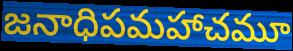
జనాధిపమహాచమూ